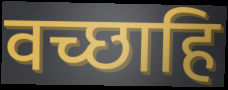
वच्छाहि